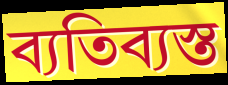
ব্যতিব্যস্ত